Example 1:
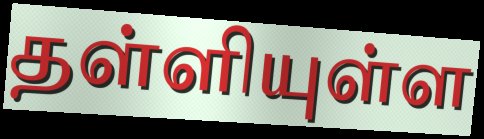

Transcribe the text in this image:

தள்ளியுள்ள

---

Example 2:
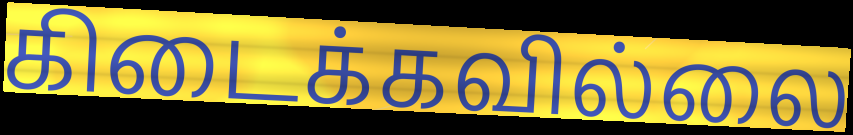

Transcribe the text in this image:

கிடைக்கவில்லை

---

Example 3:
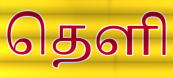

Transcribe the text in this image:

தெளி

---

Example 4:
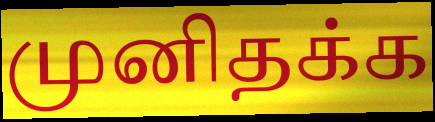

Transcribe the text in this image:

முனிதக்க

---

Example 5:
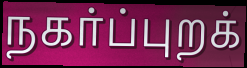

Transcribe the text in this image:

நகர்ப்புறக்